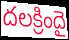
దలక్రిందై